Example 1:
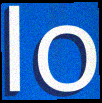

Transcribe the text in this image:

Io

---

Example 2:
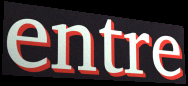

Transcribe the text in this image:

entre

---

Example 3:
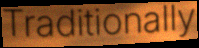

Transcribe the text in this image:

Traditionally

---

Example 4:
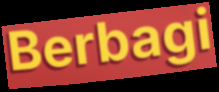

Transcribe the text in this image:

Berbagi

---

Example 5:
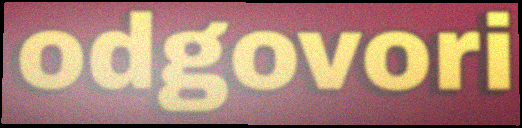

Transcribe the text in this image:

odgovori